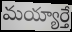
మయ్యార్తే